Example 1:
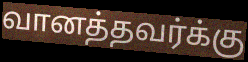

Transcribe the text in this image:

வானத்தவர்க்கு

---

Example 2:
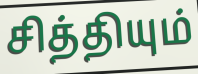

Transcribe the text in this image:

சித்தியும்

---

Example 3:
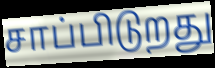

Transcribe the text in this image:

சாப்பிடுறது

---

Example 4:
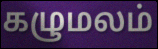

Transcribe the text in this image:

கழுமலம்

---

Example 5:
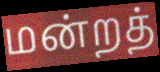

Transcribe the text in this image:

மன்றத்